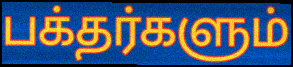
பக்தர்களும்